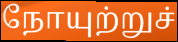
நோயுற்றுச்